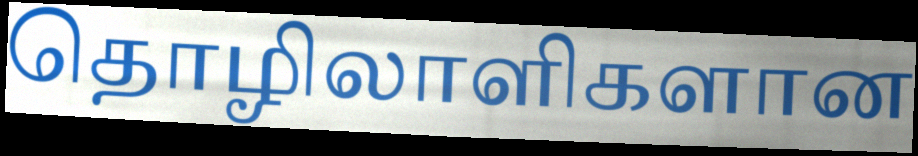
தொழிலாளிகளான